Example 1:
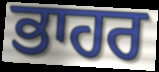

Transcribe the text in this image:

ਭਾਹਰ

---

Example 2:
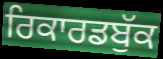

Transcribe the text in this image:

ਰਿਕਾਰਡਬੁੱਕ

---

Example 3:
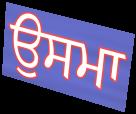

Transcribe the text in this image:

ਉਸਮਾ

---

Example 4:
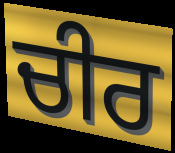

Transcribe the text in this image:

ਚੀਰ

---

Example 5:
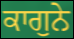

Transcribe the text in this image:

ਕਾਗੁਨੇ